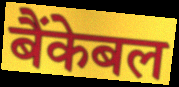
बैंकेबल